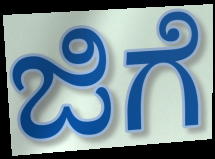
ಜಿಗೆ